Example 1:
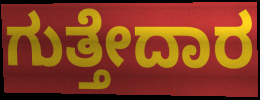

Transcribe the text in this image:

ಗುತ್ತೇದಾರ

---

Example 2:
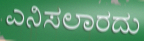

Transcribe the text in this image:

ಎನಿಸಲಾರದು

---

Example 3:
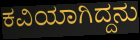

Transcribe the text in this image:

ಕವಿಯಾಗಿದ್ದನು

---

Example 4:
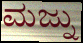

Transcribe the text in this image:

ಮಜ್ನು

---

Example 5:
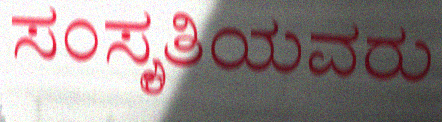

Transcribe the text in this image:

ಸಂಸ್ಕೃತಿಯವರು